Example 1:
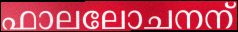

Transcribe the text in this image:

ഫാലലോചനന്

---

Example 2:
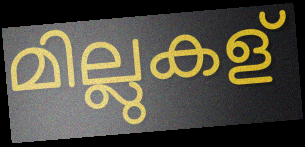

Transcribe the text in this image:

മില്ലുകള്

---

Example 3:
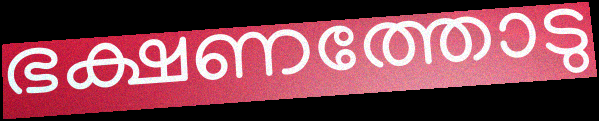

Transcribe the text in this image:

ഭക്ഷണത്തോടു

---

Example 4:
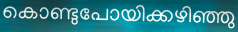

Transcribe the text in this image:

കൊണ്ടുപോയിക്കഴിഞ്ഞു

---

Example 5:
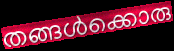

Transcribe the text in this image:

തങ്ങൾക്കൊരു